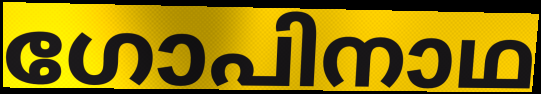
ഗോപിനാഥ